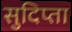
सुदिप्ता